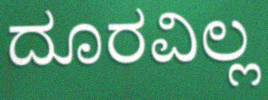
ದೂರವಿಲ್ಲ